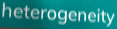
heterogeneity